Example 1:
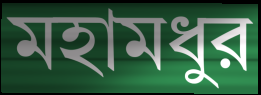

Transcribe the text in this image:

মহামধুর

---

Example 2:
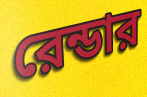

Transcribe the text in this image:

রেন্ডার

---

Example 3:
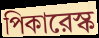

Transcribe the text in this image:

পিকারেস্ক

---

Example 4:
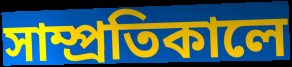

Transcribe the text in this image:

সাম্প্রতিকালে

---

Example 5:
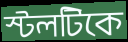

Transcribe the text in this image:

স্টলটিকে